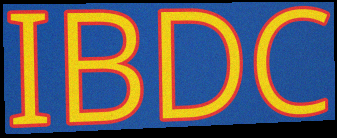
IBDC